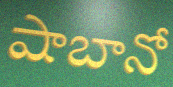
షాబానో